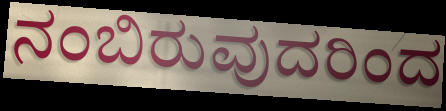
ನಂಬಿರುವುದರಿಂದ